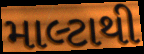
માલ્ટાથી